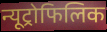
न्यूट्रोफिलिक